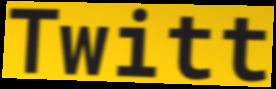
Twitt